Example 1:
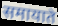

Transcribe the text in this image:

समायाते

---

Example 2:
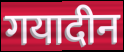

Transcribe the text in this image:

गयादीन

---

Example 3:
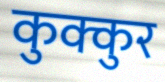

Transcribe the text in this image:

कुक्कुर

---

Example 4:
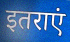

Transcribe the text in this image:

इतराएं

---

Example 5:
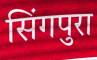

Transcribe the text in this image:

सिंगपुरा